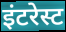
इंटरेस्ट